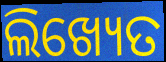
ଲିଖ୍ଯେତ